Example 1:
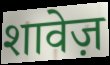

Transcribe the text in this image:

शावेज़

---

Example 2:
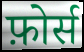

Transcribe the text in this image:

फ़ोर्स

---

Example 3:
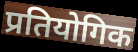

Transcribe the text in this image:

प्रतियोगिक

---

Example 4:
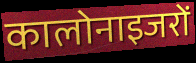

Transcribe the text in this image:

कालोनाइजरों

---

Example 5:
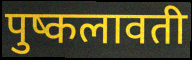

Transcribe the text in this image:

पुष्कलावती